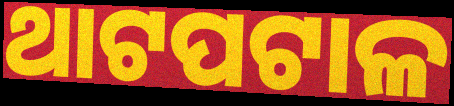
ଥାଟପଟାଳ